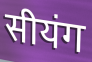
सीयंग